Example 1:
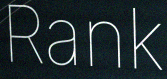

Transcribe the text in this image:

Rank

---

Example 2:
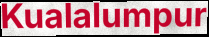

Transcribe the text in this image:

Kualalumpur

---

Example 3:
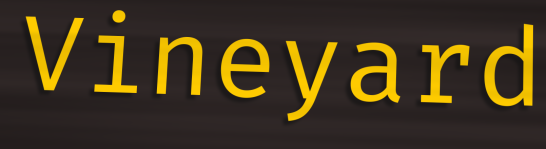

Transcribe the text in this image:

Vineyard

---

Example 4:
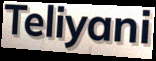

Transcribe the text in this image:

Teliyani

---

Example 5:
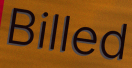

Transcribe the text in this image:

Billed